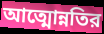
আত্মোন্নতির